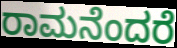
ರಾಮನೆಂದರೆ